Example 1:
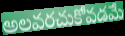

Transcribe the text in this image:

అలవరచుకోవడమే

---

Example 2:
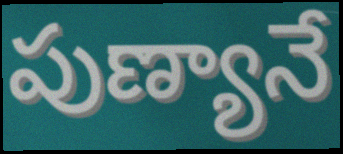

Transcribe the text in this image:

పుణ్యానే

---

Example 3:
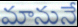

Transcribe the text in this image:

మానునే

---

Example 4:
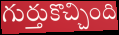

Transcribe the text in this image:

గుర్తుకొచ్చింది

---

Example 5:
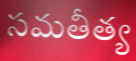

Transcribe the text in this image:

సమతీత్య